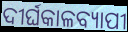
ଦୀର୍ଘକାଳବ୍ୟାପୀ